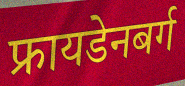
फ्रायडेनबर्ग